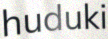
huduki